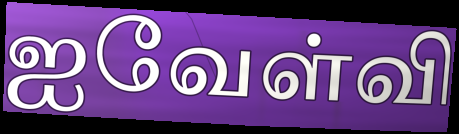
ஐவேள்வி